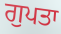
ਗੁਪਤਾ